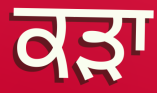
ਕੜਾ